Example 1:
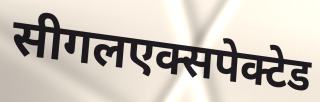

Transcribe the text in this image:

सीगलएक्सपेक्टेड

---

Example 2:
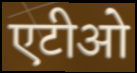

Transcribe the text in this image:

एटीओ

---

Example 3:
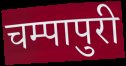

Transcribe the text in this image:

चम्पापुरी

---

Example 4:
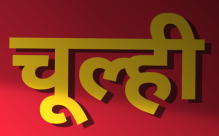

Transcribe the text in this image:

चूल्ही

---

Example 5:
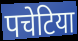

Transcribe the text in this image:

पचेटिया